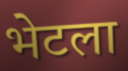
भेटला